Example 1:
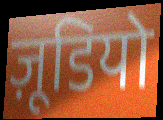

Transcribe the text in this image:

ज़ूडियो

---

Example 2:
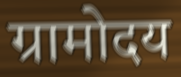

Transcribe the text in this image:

ग्रामोदय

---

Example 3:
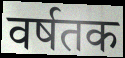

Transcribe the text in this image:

वर्षतक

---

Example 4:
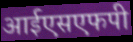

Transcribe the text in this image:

आईएसएफपी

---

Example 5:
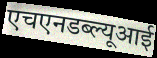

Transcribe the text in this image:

एचएनडब्ल्यूआई